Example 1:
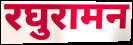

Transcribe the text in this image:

रघुरामन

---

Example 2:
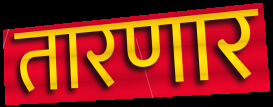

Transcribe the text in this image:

तारणार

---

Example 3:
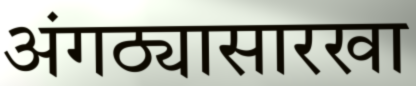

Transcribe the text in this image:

अंगठ्यासारखा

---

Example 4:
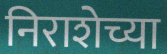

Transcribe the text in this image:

निराशेच्या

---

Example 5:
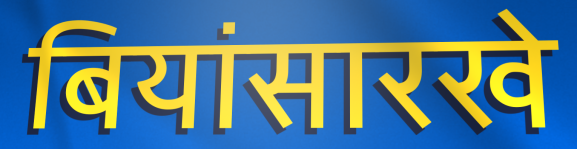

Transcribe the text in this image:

बियांसारखे